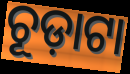
ଚୂଡ଼ାଟା